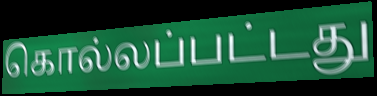
கொல்லப்பட்டது